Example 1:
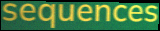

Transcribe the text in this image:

sequences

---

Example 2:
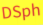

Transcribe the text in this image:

DSph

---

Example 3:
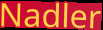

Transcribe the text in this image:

Nadler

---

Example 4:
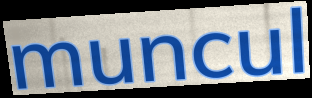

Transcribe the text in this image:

muncul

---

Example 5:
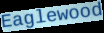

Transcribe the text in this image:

Eaglewood